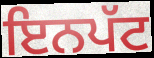
ਇਨਪੱਟ